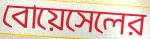
বোয়েসেলের